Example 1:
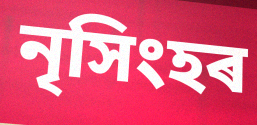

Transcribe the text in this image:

নৃসিংহৰ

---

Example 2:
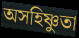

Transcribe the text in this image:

অসহিষ্ণুতা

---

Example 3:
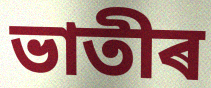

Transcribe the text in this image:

ভাতীৰ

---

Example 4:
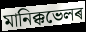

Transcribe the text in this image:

মানিক্কভেলৰ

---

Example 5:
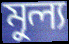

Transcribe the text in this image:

মুল্য